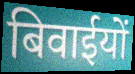
बिवाईयों